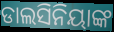
ଡାଲସିନିୟାଙ୍କ